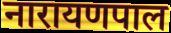
नारायणपाल